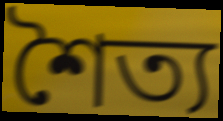
শৈত্য